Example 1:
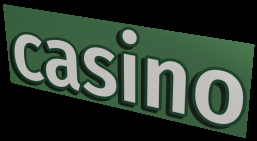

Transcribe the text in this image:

casino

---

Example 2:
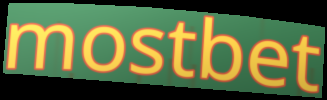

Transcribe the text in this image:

mostbet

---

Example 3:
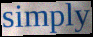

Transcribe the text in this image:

simply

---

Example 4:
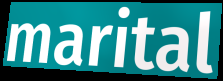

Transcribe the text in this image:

marital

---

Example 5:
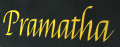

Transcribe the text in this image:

Pramatha